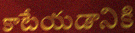
కాటేయడానికి